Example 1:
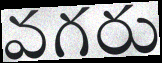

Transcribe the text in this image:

వగరు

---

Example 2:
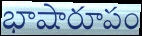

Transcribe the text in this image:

భాషారూపం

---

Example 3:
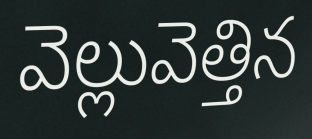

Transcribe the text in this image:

వెల్లువెత్తిన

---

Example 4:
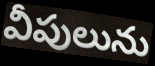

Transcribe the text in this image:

వీపులును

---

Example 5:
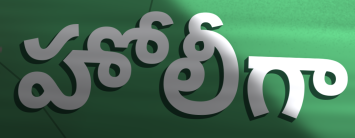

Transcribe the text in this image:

హోలీగా